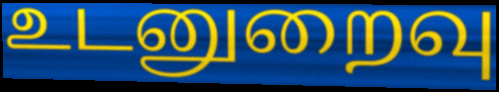
உடனுறைவு